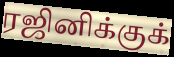
ரஜினிக்குக்